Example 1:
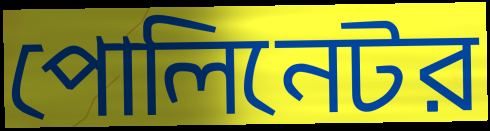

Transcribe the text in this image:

পোলিনেটর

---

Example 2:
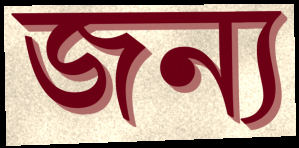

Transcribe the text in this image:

জন্য়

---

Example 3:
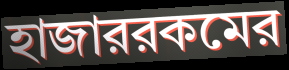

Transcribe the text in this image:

হাজাররকমের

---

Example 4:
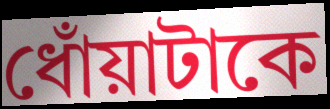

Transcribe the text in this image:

ধোঁয়াটাকে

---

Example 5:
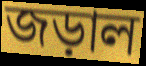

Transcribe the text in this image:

জড়াল